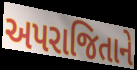
અપરાજિતાને